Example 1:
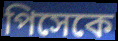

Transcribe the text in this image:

পিসেকে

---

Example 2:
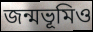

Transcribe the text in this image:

জন্মভূমিও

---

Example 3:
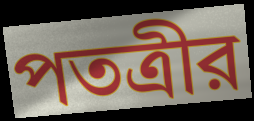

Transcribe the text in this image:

পতত্রীর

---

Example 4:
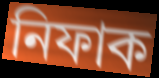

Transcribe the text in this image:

নিফাক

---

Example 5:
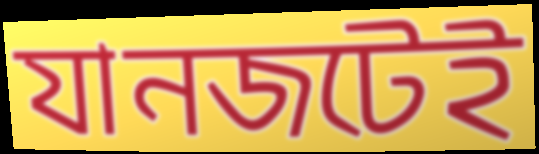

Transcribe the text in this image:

যানজটেই